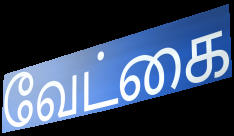
வேட்கை